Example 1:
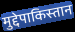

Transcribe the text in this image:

मुद्देपाकिस्तान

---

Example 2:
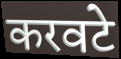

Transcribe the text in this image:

करवटे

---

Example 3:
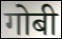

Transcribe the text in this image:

गोबी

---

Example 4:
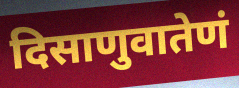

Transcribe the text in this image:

दिसाणुवातेणं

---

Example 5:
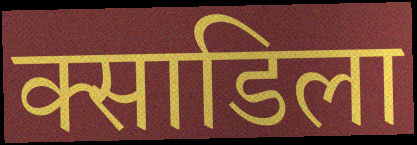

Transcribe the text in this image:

क्साडिला